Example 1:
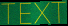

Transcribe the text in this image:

TEXT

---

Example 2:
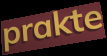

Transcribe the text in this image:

prakte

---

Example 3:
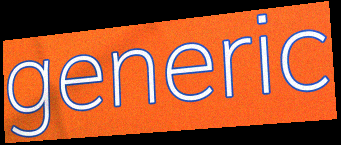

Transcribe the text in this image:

generic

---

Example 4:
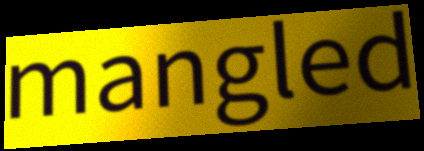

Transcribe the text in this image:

mangled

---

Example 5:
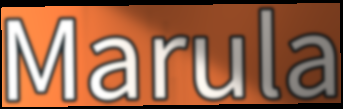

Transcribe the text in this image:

Marula